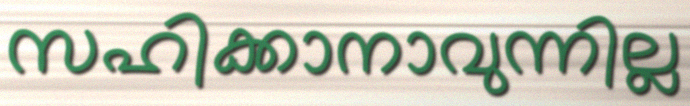
സഹിക്കാനാവുന്നില്ല